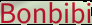
Bonbibi